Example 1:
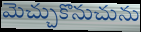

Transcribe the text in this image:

మెచ్చుకొనుచును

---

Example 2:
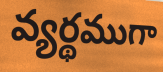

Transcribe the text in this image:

వ్యర్థముగా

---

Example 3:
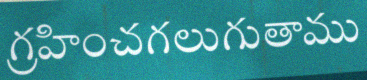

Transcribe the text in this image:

గ్రహించగలుగుతాము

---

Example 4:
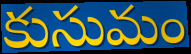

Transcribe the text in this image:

కుసుమం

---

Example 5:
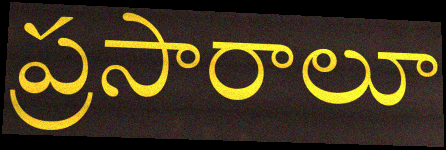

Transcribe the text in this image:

ప్రసారాలూ